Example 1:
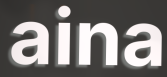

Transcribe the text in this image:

aina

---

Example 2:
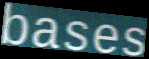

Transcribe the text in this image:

bases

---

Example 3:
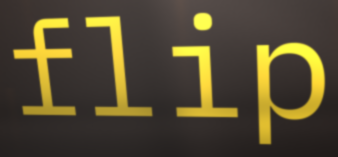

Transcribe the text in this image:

flip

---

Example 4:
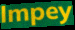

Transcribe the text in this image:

Impey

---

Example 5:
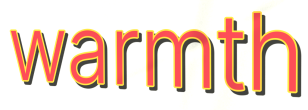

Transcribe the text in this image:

warmth